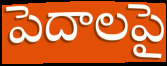
పెదాలపై